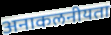
अनाकलनीयता